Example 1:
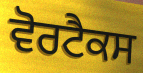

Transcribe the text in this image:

ਵੋਰਟੈਕਸ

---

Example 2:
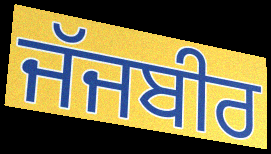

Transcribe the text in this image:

ਜੱਜਬੀਰ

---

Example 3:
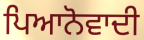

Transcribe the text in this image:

ਪਿਆਨੋਵਾਦੀ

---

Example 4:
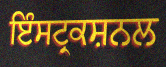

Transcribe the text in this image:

ਇੰਸਟ੍ਰਕਸ਼ਨਲ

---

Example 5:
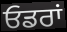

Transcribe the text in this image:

ਓਡਰਾਂ